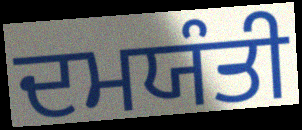
ਦਮਯੰਤੀ